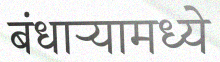
बंधाऱ्यामध्ये